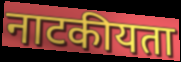
नाटकीयता